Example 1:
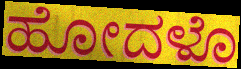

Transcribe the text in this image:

ಹೋದಳೊ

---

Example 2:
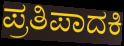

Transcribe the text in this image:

ಪ್ರತಿಪಾದಕಿ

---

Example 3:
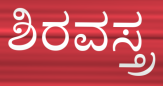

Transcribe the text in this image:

ಶಿರವಸ್ತ್ರ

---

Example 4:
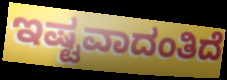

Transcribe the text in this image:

ಇಷ್ಟವಾದಂತಿದೆ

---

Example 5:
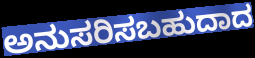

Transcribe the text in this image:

ಅನುಸರಿಸಬಹುದಾದ